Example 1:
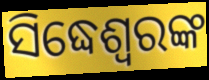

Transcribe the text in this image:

ସିଦ୍ଧେଶ୍ୱରଙ୍କ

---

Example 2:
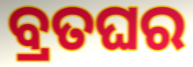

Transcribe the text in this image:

ବ୍ରତଘର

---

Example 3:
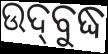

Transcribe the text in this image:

ଉଦ୍‍ବୁଦ୍ଧ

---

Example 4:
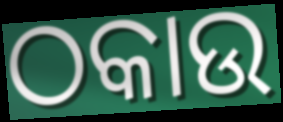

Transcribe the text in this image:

ଠକାଉ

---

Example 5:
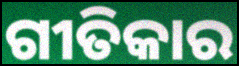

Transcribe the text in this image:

ଗୀତିକାର